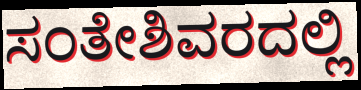
ಸಂತೇಶಿವರದಲ್ಲಿ